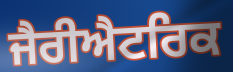
ਜੈਰੀਐਟਰਿਕ